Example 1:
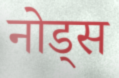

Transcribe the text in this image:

नोड्स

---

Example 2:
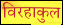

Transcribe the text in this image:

विरहाकुल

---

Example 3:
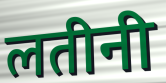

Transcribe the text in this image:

लतीनी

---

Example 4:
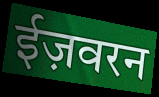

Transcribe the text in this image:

ईज़वरन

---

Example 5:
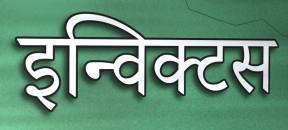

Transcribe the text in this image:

इन्विक्टस